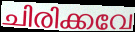
ചിരിക്കവേ